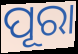
ପୂରା